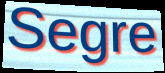
Segre